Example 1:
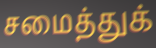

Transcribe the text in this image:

சமைத்துக்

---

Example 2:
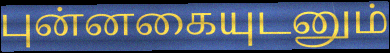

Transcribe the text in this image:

புன்னகையுடனும்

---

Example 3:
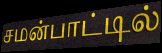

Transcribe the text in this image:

சமன்பாட்டில்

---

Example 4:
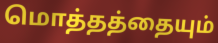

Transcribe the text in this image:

மொத்தத்தையும்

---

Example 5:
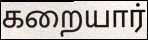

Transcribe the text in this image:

கறையார்